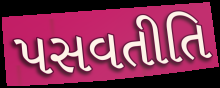
પસવતીતિ